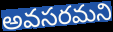
అవసరమని